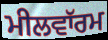
ਮੀਲਵਾੱਰਮ